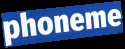
phoneme